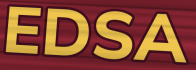
EDSA